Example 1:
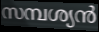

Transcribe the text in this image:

സമ്പശ്യൻ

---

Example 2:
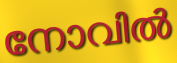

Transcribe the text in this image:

നോവിൽ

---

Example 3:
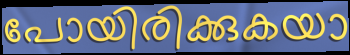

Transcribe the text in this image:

പോയിരിക്കുകയാ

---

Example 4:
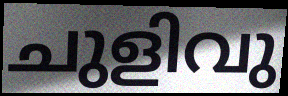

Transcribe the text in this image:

ചുളിവു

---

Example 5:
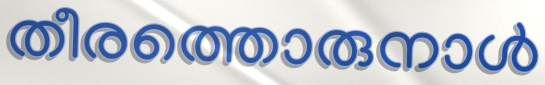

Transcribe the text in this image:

തീരത്തൊരുനാൾ